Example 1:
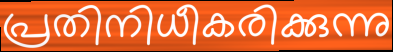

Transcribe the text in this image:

പ്രതിനിധീകരിക്കുന്നു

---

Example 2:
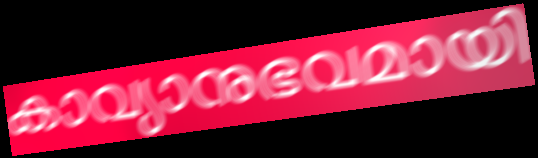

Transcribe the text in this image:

കാവ്യാനുഭവമായി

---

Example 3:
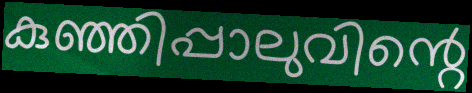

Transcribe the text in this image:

കുഞ്ഞിപ്പാലുവിന്റെ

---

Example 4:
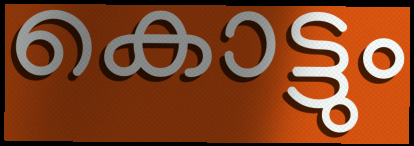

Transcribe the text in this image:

കൊട്ടും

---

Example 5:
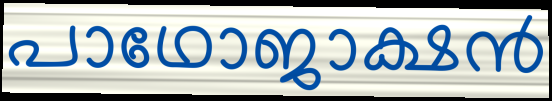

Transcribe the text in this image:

പാഥോജാക്ഷൻ